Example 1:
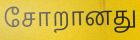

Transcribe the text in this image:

சோறானது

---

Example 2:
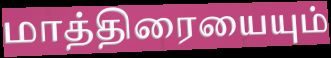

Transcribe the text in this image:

மாத்திரையையும்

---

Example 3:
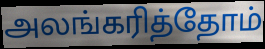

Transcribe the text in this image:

அலங்கரித்தோம்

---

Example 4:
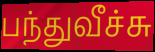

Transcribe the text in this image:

பந்துவீச்சு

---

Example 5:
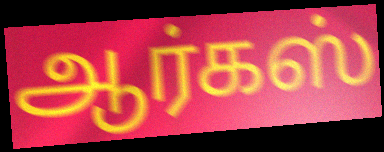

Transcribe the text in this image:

ஆர்கஸ்